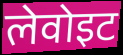
लेवोइट